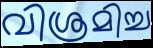
വിശ്രമിച്ച